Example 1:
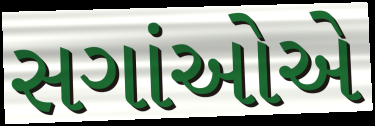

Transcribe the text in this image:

સગાંઓએ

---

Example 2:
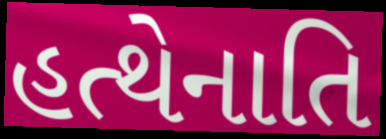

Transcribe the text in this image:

હત્થેનાતિ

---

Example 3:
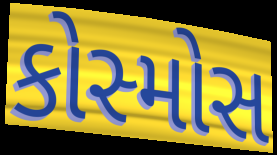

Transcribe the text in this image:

કોસ્મોસ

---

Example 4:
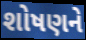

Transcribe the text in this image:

શોષણને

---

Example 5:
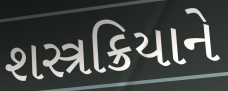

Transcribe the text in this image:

શસ્ત્રક્રિયાને